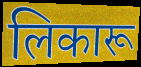
लिकारू